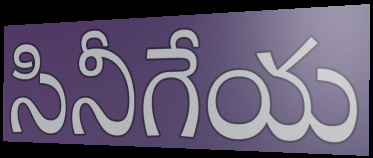
సినీగేయ